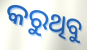
କରୁଥିବୁ